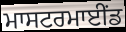
ਮਾਸਟਰਮਾਈਂਡ